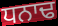
ਧਨਾਢ